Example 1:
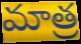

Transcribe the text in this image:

మాత్ర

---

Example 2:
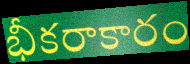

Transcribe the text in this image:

భీకరాకారం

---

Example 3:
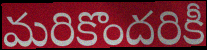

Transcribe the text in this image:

మరికొందరికీ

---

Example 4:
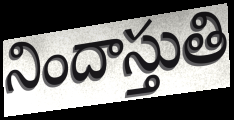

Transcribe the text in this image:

నిందాస్తుతి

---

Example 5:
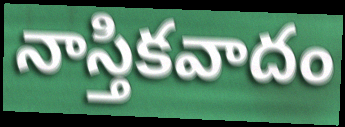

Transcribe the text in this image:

నాస్తికవాదం